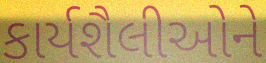
કાર્યશૈલીઓને